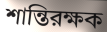
শান্তিরক্ষক